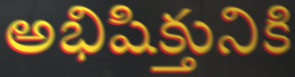
అభిషిక్తునికి